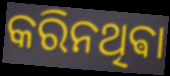
କରିନଥିଵା